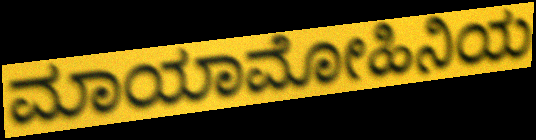
ಮಾಯಾಮೋಹಿನಿಯ